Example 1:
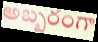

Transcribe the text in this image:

అబ్బరంగా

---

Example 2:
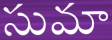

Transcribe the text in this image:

సుమా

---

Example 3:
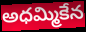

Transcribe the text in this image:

అధమ్మికేన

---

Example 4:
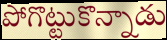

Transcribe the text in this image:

పోగొట్టుకొన్నాడు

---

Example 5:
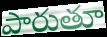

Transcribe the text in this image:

పారుతూ